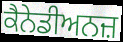
ਕੈਨੇਡੀਅਨਜ਼